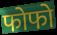
फोफो